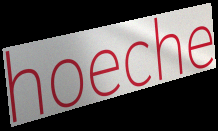
hoeche